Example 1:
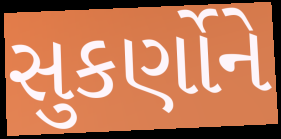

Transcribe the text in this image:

સુકર્ણોને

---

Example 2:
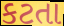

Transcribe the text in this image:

કટતા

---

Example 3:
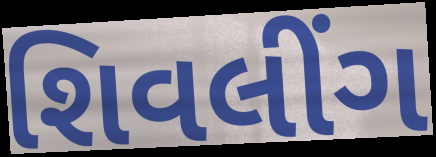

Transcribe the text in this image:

શિવલીંગ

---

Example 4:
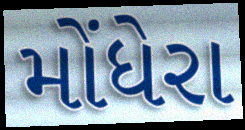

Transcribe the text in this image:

મોંધેરા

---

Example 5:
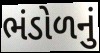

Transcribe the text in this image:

ભંડોળનું